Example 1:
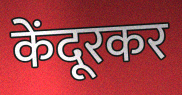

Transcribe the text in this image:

केंदूरकर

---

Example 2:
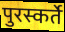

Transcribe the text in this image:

पुरस्कर्ते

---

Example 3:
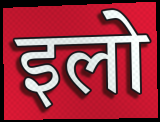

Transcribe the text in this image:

इलो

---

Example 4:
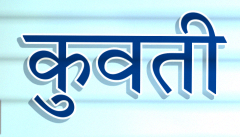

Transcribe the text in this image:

कुवती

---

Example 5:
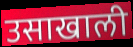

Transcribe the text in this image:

उसाखाली